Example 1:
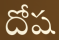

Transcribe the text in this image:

దోష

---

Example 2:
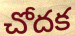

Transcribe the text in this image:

చోదక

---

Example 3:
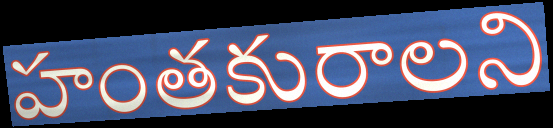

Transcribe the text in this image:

హంతకురాలని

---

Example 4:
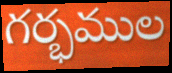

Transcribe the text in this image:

గర్భముల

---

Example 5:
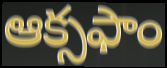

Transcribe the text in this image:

ఆక్సఫాం